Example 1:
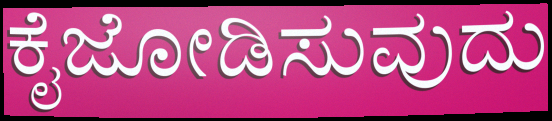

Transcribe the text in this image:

ಕೈಜೋಡಿಸುವುದು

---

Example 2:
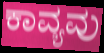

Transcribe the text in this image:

ಕಾವ್ಯವು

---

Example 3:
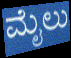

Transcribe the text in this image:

ಮೈಲು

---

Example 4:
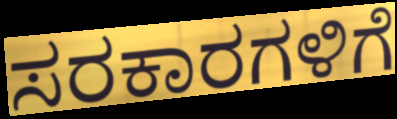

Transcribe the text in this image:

ಸರಕಾರಗಳಿಗೆ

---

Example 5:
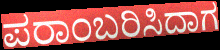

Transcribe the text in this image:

ಪರಾಂಬರಿಸಿದಾಗ